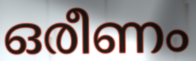
ഒരീണം